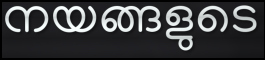
നയങ്ങളുടെ